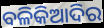
ବଳିକିଆଦିର